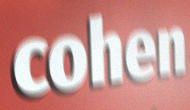
cohen